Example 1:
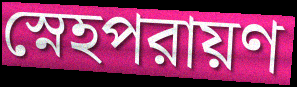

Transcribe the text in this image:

স্নেহপরায়ণ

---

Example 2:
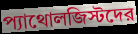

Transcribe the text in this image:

প্যাথোলজিস্টদের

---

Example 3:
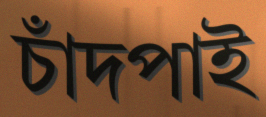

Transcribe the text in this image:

চাঁদপাই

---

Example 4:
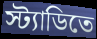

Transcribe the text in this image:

স্ট্যাডিতে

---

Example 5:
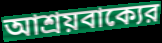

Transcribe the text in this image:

আশ্রয়বাক্যের